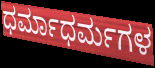
ಧರ್ಮಾಧರ್ಮಗಳ